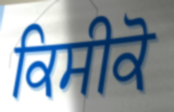
ਕਿਸੀਕੋ